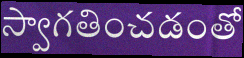
స్వాగతించడంతో